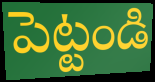
పెట్టండి